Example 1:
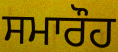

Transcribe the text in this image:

ਸਮਾਰੌਹ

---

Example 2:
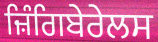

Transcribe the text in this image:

ਜ਼ਿੰਗਿਬੇਰੇਲਸ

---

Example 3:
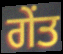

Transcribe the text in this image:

ਗੇਂਤ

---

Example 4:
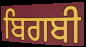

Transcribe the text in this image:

ਬਿਗਬੀ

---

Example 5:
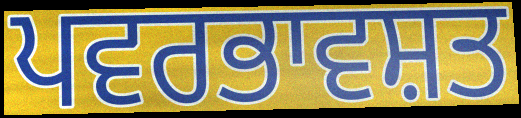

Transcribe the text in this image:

ਪਵਰਭਾਵਸ਼ਤ